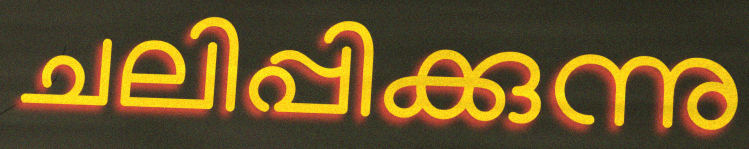
ചലിപ്പിക്കുന്നു